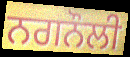
ਨਗਨੌਲੀ